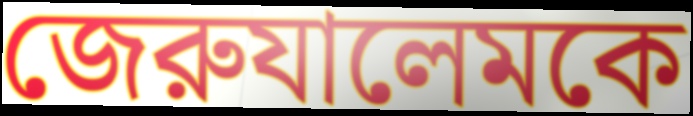
জেরুযালেমকে